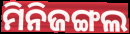
ମିନିଜଙ୍ଗଲ